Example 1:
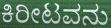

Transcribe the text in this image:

ಕಿರೀಟವನು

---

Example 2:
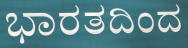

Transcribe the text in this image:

ಭಾರತದಿಂದ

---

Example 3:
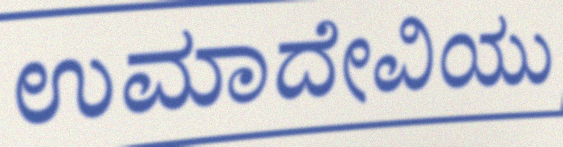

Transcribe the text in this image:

ಉಮಾದೇವಿಯು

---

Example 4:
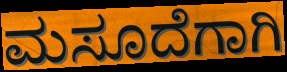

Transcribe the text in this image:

ಮಸೂದೆಗಾಗಿ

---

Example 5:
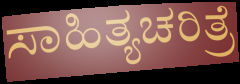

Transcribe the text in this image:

ಸಾಹಿತ್ಯಚರಿತ್ರೆ